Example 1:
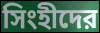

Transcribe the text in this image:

সিংহীদের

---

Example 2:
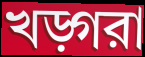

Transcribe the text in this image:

খড়্গরা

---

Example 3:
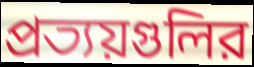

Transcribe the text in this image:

প্রত্যয়গুলির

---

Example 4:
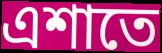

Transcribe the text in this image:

এশাতে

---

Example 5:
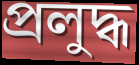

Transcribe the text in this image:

প্রলুদ্ধ